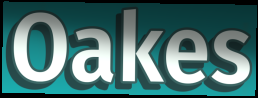
Oakes